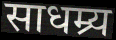
साधम्र्य